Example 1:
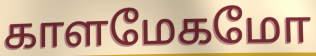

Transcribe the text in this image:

காளமேகமோ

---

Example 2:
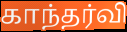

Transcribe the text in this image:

காந்தர்வி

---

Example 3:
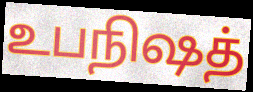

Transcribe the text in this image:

உபநிஷத்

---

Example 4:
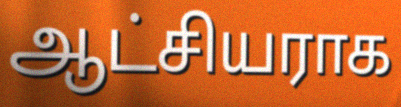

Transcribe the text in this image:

ஆட்சியராக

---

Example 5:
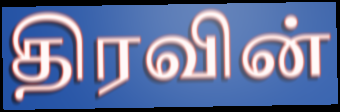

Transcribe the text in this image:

திரவின்